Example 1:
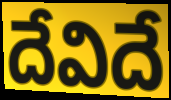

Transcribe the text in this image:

దేవిదే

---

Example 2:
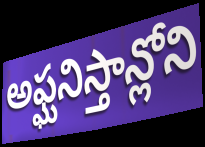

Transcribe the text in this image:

అఫ్ఘనిస్తాన్లోని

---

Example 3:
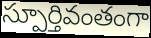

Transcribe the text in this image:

స్పూర్తివంతంగా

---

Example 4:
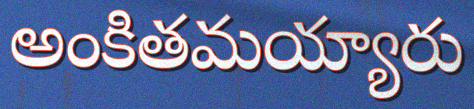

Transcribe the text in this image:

అంకితమయ్యారు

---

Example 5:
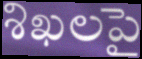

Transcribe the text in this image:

శిఖలపై